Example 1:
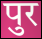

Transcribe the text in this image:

पुर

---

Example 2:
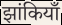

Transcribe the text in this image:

झांकियाँ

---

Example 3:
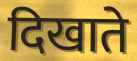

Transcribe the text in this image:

दिखाते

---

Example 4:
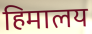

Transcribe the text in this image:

हिमालय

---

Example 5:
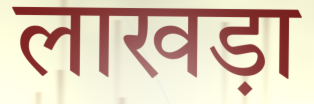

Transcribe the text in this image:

लाखड़ा